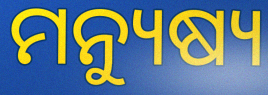
ମନ୍ୟୁଷ୍ୟ